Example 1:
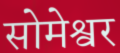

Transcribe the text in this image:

सोमेश्वर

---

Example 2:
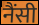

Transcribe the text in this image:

नैंसी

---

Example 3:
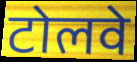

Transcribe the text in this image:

टोलवे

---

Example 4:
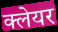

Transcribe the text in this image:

क्‍लेयर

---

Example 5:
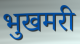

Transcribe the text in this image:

भुखमरी